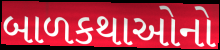
બાળકથાઓનો